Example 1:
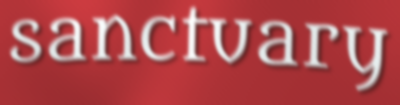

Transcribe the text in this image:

sanctuary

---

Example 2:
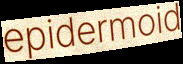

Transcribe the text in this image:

epidermoid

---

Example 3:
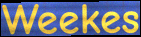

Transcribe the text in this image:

Weekes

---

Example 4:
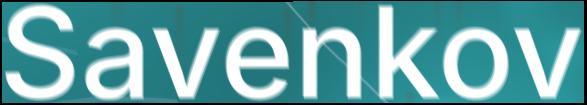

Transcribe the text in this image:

Savenkov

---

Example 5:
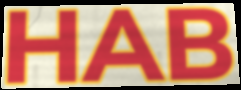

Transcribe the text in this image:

HAB